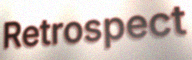
Retrospect